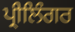
ਪ੍ਰੀਲਿੰਗਰ